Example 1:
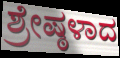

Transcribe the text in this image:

ಶ್ರೇಷ್ಠಳಾದ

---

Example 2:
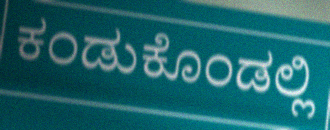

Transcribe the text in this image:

ಕಂಡುಕೊಂಡಲ್ಲಿ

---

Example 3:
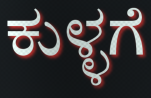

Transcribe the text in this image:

ಕುಳ್ಳಗೆ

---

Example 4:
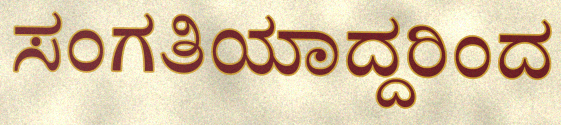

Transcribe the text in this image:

ಸಂಗತಿಯಾದ್ದರಿಂದ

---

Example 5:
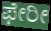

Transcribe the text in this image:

ಫೇರೀ